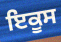
ਇਕੂਸ